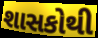
શાસકોથી